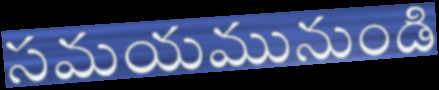
సమయమునుండి